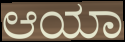
ಆಯಾ